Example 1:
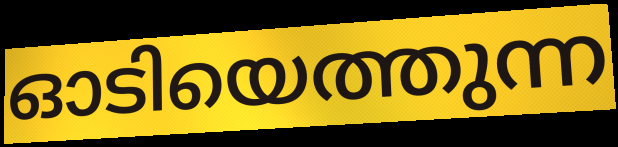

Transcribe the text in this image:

ഓടിയെത്തുന്ന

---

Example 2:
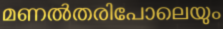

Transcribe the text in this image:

മണൽതരിപോലെയും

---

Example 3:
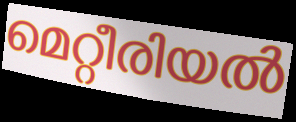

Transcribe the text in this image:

മെറ്റീരിയൽ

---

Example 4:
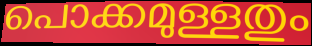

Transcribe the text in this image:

പൊക്കമുള്ളതും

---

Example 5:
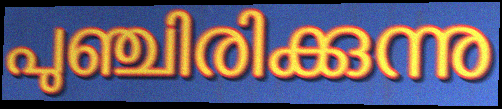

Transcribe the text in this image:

പുഞ്ചിരിക്കുന്നു